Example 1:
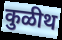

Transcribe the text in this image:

कुळीथ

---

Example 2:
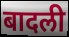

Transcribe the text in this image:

बादली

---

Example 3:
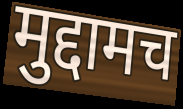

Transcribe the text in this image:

मुद्दामच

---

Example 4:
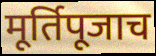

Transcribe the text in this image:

मूर्तिपूजाच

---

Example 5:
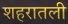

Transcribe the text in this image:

शहरातली